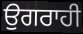
ਉਗਰਾਹੀ